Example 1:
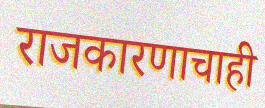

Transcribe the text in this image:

राजकारणाचाही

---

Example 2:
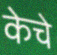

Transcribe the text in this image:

केचे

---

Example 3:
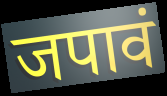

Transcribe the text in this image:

जपावं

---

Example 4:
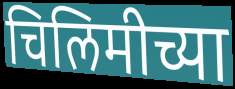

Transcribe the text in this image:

चिलिमीच्या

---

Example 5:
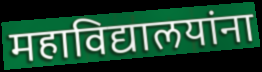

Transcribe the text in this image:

महाविद्यालयांना